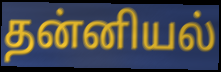
தன்னியல்